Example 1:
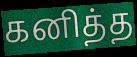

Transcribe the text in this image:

கனித்த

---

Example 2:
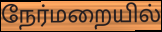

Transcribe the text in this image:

நேர்மறையில்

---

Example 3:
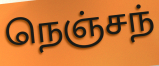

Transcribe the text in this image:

நெஞ்சந்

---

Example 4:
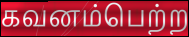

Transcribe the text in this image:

கவனம்பெற்ற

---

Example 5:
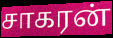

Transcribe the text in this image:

சாகரன்